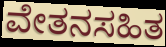
ವೇತನಸಹಿತ